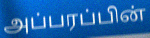
அப்பரப்பின்